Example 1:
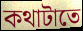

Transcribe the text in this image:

কথাটাতে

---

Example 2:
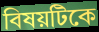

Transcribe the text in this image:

বিষয়টিকে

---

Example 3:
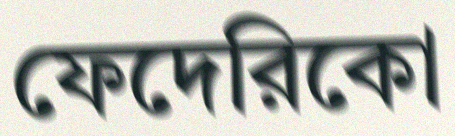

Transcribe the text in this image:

ফেদেরিকো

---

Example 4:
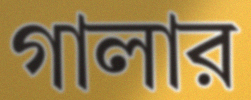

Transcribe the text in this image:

গালার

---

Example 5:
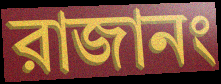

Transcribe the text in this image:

রাজানং